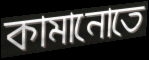
কামানোতে